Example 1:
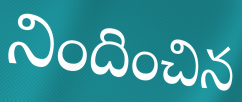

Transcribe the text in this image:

నిందించిన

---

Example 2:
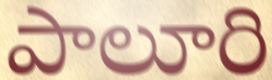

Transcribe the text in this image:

పాలూరి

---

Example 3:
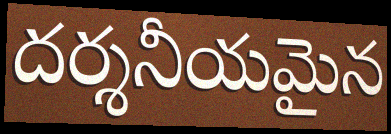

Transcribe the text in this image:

దర్శనీయమైన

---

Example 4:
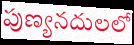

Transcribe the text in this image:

పుణ్యనదులలో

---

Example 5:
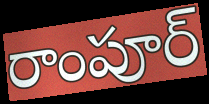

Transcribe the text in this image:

రాంపూర్